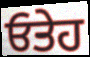
ਓਤੇਹ